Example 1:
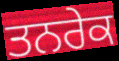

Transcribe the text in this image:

ਤਨਰੇਕ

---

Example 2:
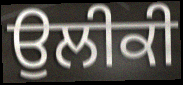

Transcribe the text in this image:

ਉਲੀਕੀ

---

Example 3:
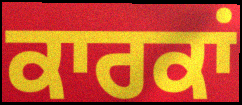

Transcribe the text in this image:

ਕਾਰਕਾਂ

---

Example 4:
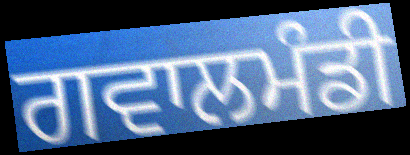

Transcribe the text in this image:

ਗਵਾਲਮੰਡੀ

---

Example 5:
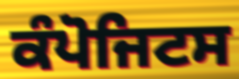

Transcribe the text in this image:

ਕੰਪੋਜਿਟਸ